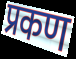
प्रकण